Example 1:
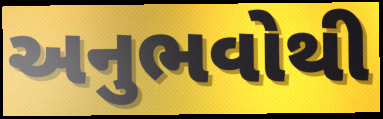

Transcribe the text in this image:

અનુભવોથી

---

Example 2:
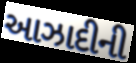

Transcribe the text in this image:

આઝાદીની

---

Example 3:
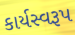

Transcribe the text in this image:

કાર્યસ્વરૂપ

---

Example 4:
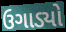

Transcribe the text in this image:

ઉગાડ્યો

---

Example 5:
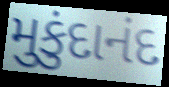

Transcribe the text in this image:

મુકુંદાનંદ